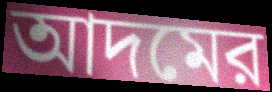
আদমের